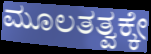
ಮೂಲತತ್ವಕ್ಕೇ